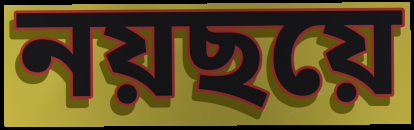
নয়ছয়ে